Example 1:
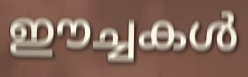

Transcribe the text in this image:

ഈച്ചകൾ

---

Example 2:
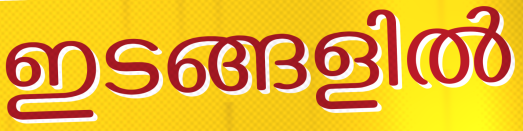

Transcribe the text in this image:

ഇടങ്ങളിൽ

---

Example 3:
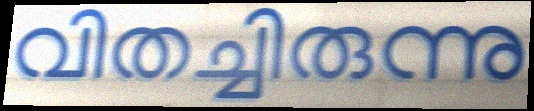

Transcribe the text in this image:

വിതച്ചിരുന്നു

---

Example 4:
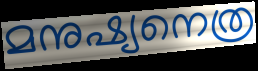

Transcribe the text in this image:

മനുഷ്യനെത്ര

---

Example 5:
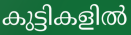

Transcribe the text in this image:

കുട്ടികളിൽ